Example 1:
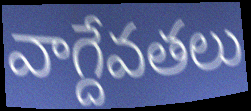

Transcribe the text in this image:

వాగ్దేవతలు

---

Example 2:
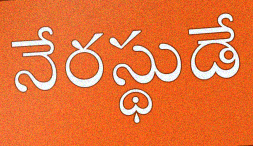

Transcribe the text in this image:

నేరస్థుడే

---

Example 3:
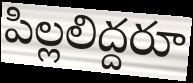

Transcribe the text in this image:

పిల్లలిద్దరూ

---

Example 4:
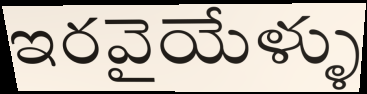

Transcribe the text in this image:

ఇరవైయేళ్ళు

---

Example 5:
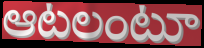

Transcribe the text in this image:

ఆటలంటూ